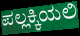
ಪಲ್ಲಕ್ಕಿಯಲಿ